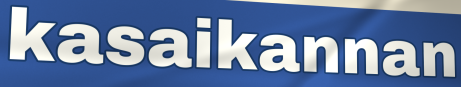
kasaikannan